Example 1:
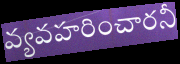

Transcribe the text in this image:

వ్యవహరించారనీ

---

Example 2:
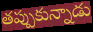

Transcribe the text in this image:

తప్పుకున్నాడు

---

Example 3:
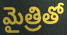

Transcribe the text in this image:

మైత్రితో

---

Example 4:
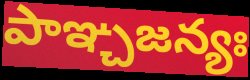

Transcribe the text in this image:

పాఞ్చజన్యః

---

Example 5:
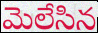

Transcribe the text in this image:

మెలేసిన